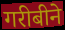
गरीबीने